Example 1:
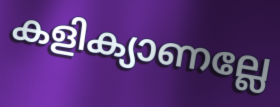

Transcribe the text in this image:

കളിക്യാണല്ലേ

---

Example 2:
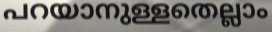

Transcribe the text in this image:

പറയാനുള്ളതെല്ലാം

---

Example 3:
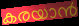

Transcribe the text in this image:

കരയാൻ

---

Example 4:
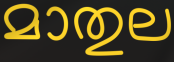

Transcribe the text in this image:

മാതുല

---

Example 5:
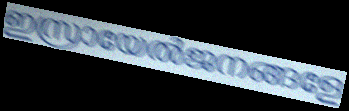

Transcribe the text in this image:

ഇസ്രായേൽജനങ്ങളേ